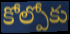
కోల్పోకు